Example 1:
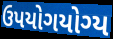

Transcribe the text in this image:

ઉપયોગયોગ્ય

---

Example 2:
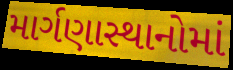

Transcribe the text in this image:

માર્ગણાસ્થાનોમાં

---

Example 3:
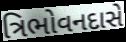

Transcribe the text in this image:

ત્રિભોવનદાસે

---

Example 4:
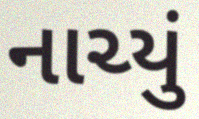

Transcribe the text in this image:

નાચ્યું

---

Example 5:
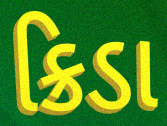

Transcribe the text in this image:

ક્રિડા